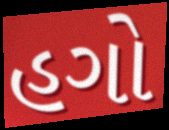
હગો